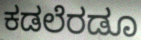
ಕಡಲೆರಡೂ